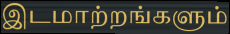
இடமாற்றங்களும்